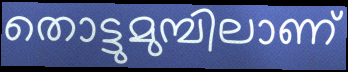
തൊട്ടുമുമ്പിലാണ്